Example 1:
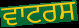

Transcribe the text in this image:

ਵਾਟਰਸ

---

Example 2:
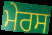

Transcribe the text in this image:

ਮੇਰਸ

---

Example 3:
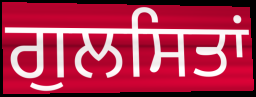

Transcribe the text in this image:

ਗੁਲਸਿਤਾਂ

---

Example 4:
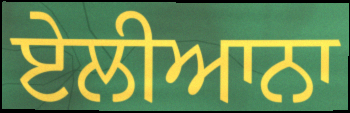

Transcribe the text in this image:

ਏਲੀਆਨਾ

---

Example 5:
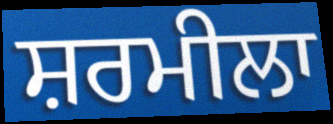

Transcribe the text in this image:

ਸ਼ਰਮੀਲਾ